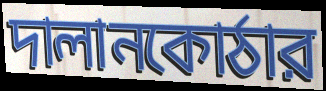
দালানকোঠার